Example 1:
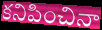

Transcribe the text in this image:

కనిపించినా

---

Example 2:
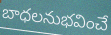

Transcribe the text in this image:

బాధలనుభవించే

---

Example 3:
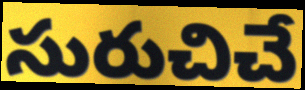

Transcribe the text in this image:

సురుచిచే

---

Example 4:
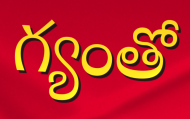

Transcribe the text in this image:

గ్యంతో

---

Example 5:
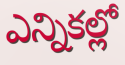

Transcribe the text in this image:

ఎన్నికల్లో